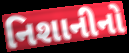
નિશાનીનો